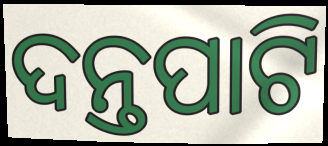
ଦନ୍ତପାଟି